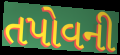
તપોવની